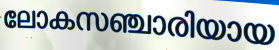
ലോകസഞ്ചാരിയായ